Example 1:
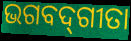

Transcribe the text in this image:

ଭଗବଦ୍‍ଗୀତା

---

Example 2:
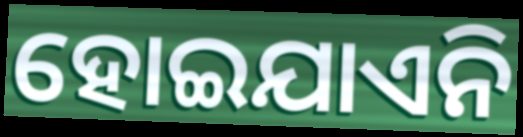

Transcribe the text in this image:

ହୋଇଯାଏନି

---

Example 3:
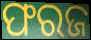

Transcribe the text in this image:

ଫରଜ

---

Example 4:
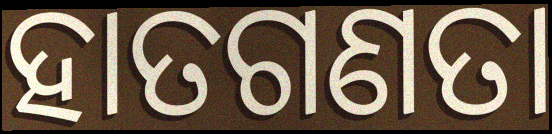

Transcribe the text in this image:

ହାତଗଣତା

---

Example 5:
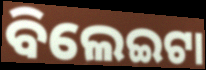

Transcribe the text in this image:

ବିଲେଇଟା